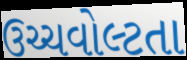
ઉચ્ચવોલ્ટતા